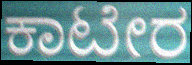
ಕಾಟೇರ